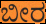
ಬೀರ